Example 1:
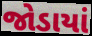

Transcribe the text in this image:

જોડાયાં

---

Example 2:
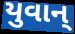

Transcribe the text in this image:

યુવાન્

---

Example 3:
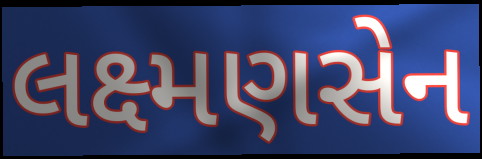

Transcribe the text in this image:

લક્ષ્મણસેન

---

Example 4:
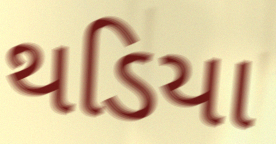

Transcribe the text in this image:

થડિયા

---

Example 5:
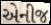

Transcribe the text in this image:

એનીજ